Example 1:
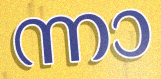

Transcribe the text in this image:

ന്നാ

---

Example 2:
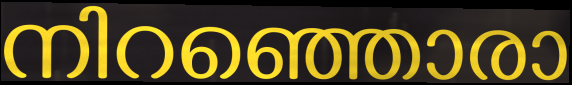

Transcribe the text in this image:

നിറഞ്ഞൊരാ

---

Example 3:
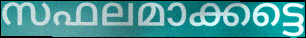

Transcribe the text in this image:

സഫലമാക്കട്ടെ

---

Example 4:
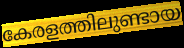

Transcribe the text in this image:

കേരളത്തിലുണ്ടായ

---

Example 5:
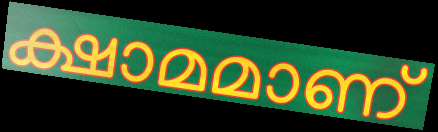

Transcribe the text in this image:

ക്ഷാമമാണ്